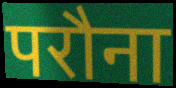
परौना